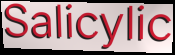
Salicylic